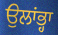
ਉਲਾਂਭ੍ਹਾ